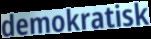
demokratisk